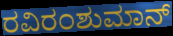
ರವಿರಂಶುಮಾನ್